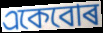
একেবোৰ